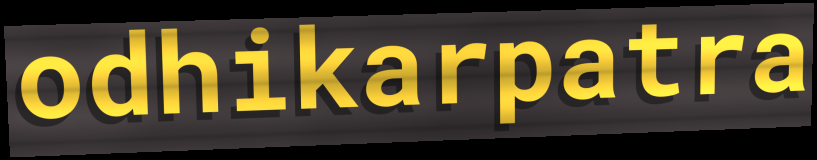
odhikarpatra